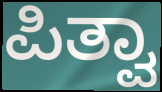
ಪಿತ್ವಾ